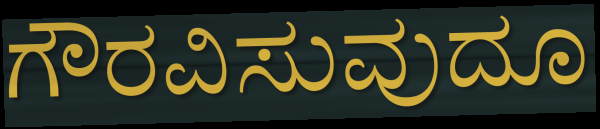
ಗೌರವಿಸುವುದೂ